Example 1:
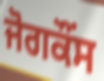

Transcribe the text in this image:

ਜੋਗਕੌਂਸ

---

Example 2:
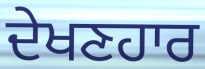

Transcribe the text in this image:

ਦੇਖਣਹਾਰ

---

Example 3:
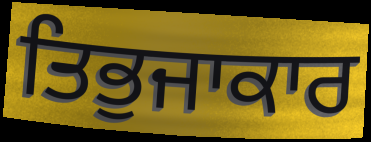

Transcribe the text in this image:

ਤਿਭੁਜਾਕਾਰ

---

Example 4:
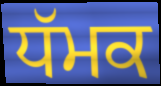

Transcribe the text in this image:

ਧੱਮਕ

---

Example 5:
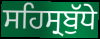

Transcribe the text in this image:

ਸਹਿਸ੍ਰਬੁੱਧੇ